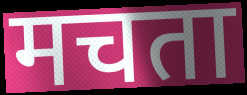
मचता